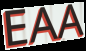
EAA